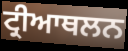
ਟ੍ਰੀਆਥਲਨ